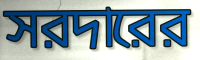
সরদারের